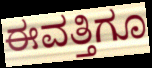
ಈವತ್ತಿಗೂ